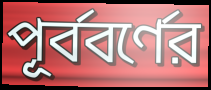
পূর্ববর্ণের